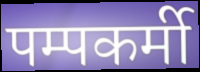
पम्पकर्मी